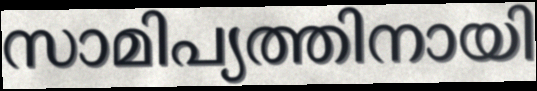
സാമിപ്യത്തിനായി